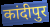
कांदीपुर